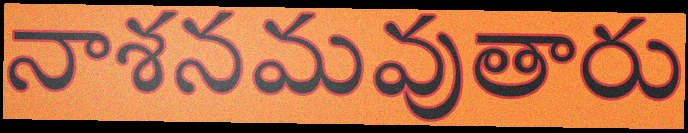
నాశనమవుతారు